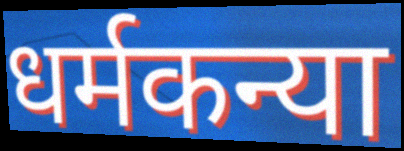
धर्मकन्या